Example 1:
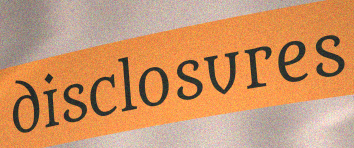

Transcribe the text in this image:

disclosures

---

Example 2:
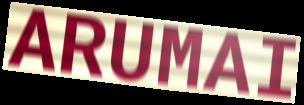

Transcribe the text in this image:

ARUMAI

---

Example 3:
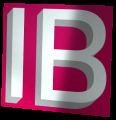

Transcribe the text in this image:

IB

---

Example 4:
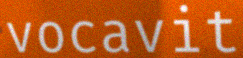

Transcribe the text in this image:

vocavit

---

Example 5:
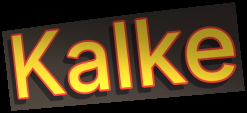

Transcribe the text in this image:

Kalke